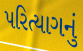
પરિત્યાગનું